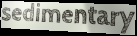
sedimentary